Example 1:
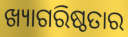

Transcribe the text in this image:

ଖ୍ୟାଗରିଷ୍ଠତାର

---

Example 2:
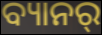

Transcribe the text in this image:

ବ୍ୟାନର୍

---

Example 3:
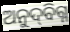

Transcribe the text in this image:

ଅନୁଦ୍‌ବିଗ୍ନ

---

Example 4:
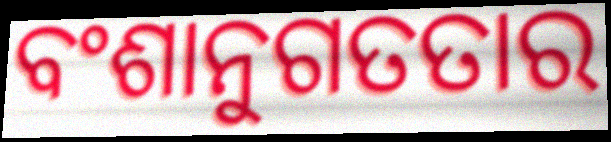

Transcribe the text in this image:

ବଂଶାନୁଗତତାର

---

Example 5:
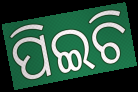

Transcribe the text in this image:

ପିଇଚି